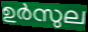
ഉർസുല